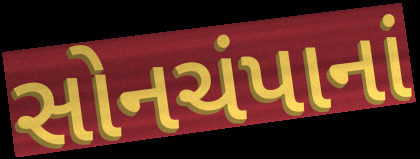
સોનચંપાનાં